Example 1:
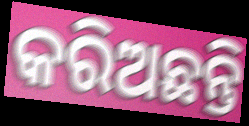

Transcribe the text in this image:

କରିଅଛନ୍ତି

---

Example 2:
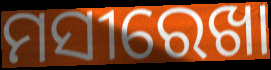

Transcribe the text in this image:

ମସୀରେଖା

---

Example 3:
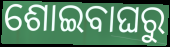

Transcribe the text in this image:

ଶୋଇବାଘରୁ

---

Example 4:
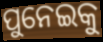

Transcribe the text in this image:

ପୁନେଇକୁ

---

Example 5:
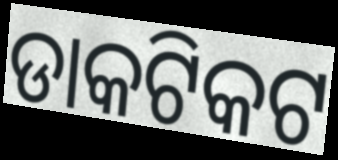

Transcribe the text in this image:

ଡାକଟିକଟ